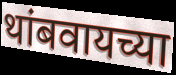
थांबवायच्या